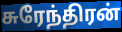
சுரேந்திரன்